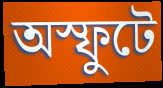
অস্ফুটে